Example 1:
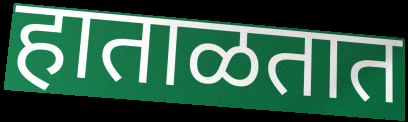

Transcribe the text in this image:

हाताळतात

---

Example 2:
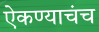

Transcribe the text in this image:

ऐकण्याचंच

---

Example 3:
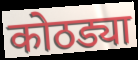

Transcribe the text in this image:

कोठड्या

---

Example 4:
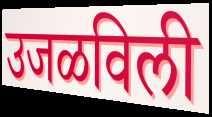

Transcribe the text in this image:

उजळविली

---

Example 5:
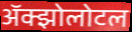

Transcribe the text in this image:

ॲक्झोलोटल